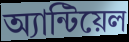
অ্যান্টিয়েল